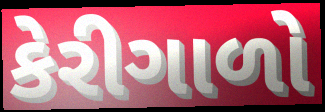
કેરીગાળો